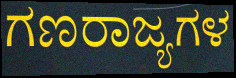
ಗಣರಾಜ್ಯಗಳ